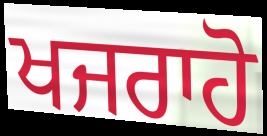
ਖਜਰਾਹੋ